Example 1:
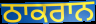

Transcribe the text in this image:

ਠਾਕਰਾਨ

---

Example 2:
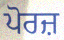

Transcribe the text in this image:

ਪੋਰਜ਼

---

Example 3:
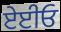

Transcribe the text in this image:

ਏਈਓ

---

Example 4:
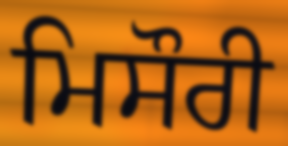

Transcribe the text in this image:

ਮਿਸੌਰੀ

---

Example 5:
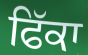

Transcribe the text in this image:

ਫਿੱਕਾ